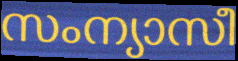
സംന്യാസീ